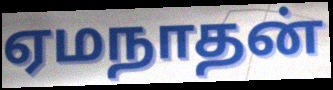
ஏமநாதன்